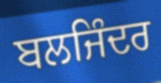
ਬਲਜਿੰਦਰ